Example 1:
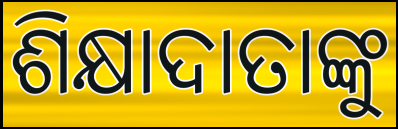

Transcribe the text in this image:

ଶିକ୍ଷାଦାତାଙ୍କୁ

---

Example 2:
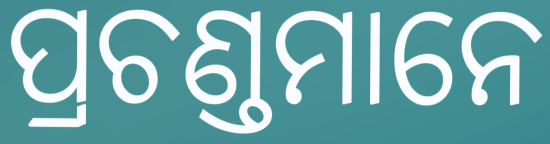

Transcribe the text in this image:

ପ୍ରଚଣ୍ଡମାନେ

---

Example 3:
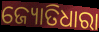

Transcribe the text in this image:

ଜ୍ଯୋତିଧାରା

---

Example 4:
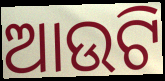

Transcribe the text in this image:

ଆଉଟି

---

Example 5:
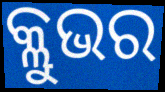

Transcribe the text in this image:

କ୍ଲୁଭର